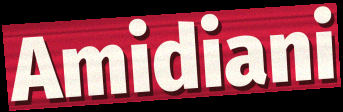
Amidiani